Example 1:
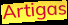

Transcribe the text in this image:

Artigas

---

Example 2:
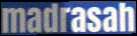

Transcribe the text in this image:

madrasah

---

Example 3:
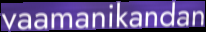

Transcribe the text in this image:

vaamanikandan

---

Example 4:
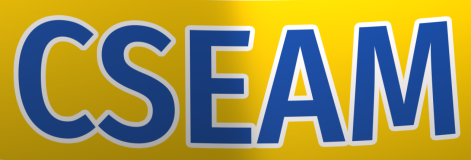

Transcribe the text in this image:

CSEAM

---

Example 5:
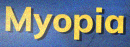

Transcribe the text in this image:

Myopia